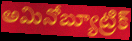
అమినోబ్యూట్రిక్